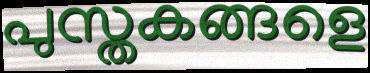
പുസ്തകങ്ങളെ